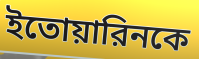
ইতোয়ারিনকে